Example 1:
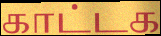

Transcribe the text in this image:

காட்டக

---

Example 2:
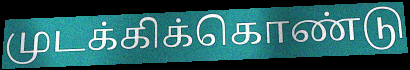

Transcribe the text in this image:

முடக்கிக்கொண்டு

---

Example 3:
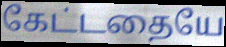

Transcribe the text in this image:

கேட்டதையே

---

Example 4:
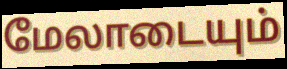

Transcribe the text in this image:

மேலாடையும்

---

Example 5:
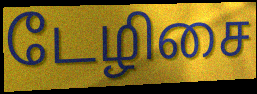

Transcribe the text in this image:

டேழிசை